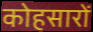
कोहसारों